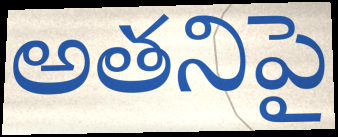
అతనిపై